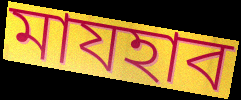
মাযহাব